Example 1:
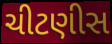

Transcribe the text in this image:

ચીટણીસ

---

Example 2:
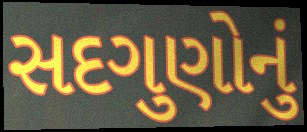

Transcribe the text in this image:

સદગુણોનું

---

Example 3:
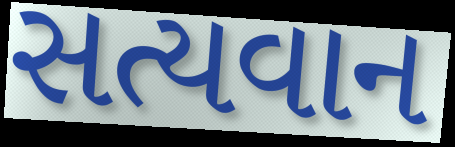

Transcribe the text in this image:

સત્યવાન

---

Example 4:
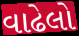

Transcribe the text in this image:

વાઢેલો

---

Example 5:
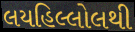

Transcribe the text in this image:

લયહિલ્લોલથી